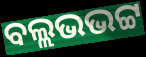
ବଲ୍ଲଭଭଟ୍ଟ